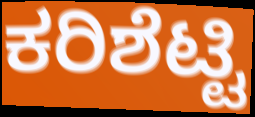
ಕರಿಶೆಟ್ಟಿ